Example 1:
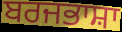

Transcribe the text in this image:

ਬਰਜਭਾਸ਼ਾ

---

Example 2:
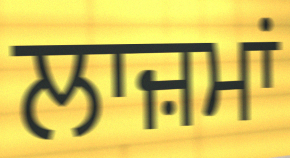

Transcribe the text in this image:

ਲਾਜ਼ਮਾਂ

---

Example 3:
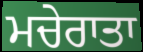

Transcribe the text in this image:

ਮਚੇਰਾਤਾ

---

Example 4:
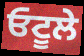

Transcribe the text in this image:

ਓਟੂਲੇ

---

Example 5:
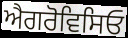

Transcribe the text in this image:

ਐਗਰੋਵਿਸਿਓ